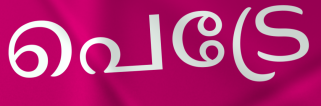
പെട്രേ